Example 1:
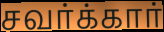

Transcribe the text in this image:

சவர்க்கார்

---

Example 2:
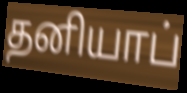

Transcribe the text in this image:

தனியாப்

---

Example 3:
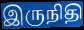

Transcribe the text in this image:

இருநிதி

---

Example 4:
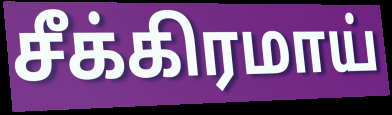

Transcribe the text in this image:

சீக்கிரமாய்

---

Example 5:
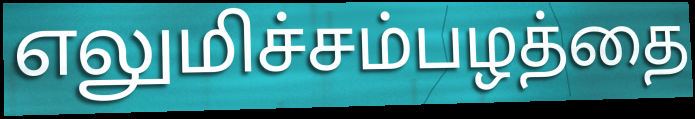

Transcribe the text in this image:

எலுமிச்சம்பழத்தை